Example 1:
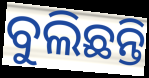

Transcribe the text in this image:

ବୁଲିଛନ୍ତି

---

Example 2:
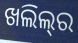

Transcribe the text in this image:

ଖଲିଲ୍‍ର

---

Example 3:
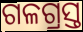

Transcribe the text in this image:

ଗଳଗ୍ରସ୍ତ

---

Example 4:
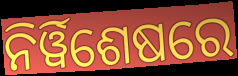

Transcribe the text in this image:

ନିର୍ୱିଶେଷରେ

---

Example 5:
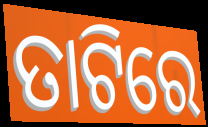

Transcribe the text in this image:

ତାଟିରେ